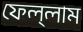
ফেল্‌লাম